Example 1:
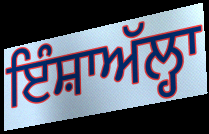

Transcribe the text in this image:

ਇੰਸ਼ਾਅੱਲ੍ਹਾ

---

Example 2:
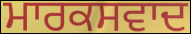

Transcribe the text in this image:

ਮਾਰਕਸਵਾਦ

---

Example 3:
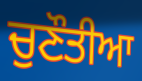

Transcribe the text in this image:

ਚੁਣੌਤੀਆ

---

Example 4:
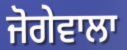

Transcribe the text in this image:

ਜੋਗੇਵਾਲਾ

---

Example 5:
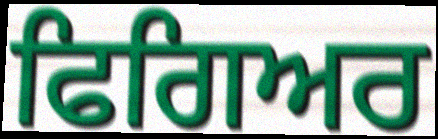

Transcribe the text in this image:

ਫਿਗਿਅਰ